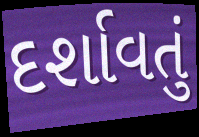
દર્શાવતું